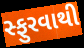
સ્ફુરવાથી